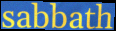
sabbath